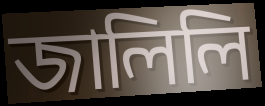
জালিলি